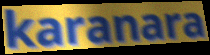
karanara